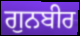
ਗੁਨਬੀਰ